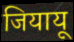
जियायू